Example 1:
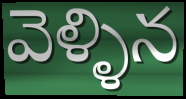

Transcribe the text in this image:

వెళ్ళిన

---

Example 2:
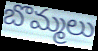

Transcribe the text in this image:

బొమ్మలు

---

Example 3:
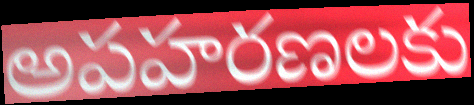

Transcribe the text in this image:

అపహరణలకు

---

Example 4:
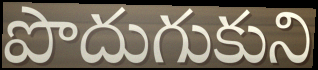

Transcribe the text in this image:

పొదుగుకుని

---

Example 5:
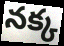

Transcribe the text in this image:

నక్క